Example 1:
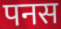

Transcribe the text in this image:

पनस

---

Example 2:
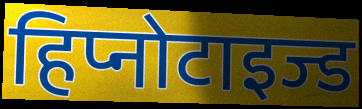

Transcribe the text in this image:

हिप्नोटाइज्ड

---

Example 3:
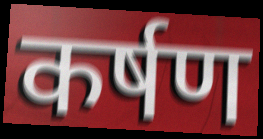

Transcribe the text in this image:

कर्षण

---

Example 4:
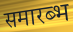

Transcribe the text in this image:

समारब्भ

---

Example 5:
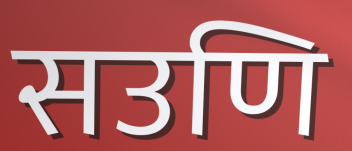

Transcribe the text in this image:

सउणि